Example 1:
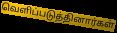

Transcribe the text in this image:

வெளிப்படுத்தினார்கள்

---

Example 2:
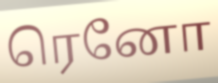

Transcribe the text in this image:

ரெனோ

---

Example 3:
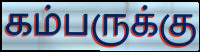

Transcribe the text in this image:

கம்பருக்கு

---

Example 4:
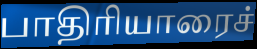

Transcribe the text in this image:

பாதிரியாரைச்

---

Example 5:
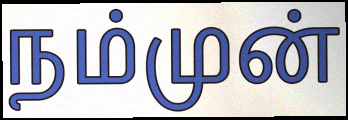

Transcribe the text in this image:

நம்முன்